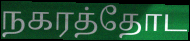
நகரத்தோட